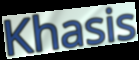
Khasis